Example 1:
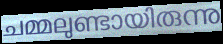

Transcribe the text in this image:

ചമ്മലുണ്ടായിരുന്നു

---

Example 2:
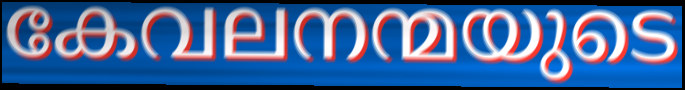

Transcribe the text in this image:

കേവലനന്മയുടെ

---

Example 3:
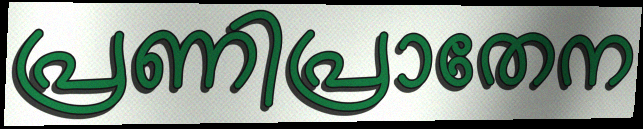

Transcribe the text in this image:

പ്രണിപ്രാതേന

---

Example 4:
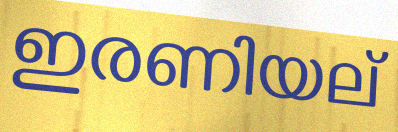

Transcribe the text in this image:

ഇരണിയല്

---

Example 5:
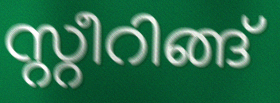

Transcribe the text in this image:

സ്റ്റീറിങ്ങ്